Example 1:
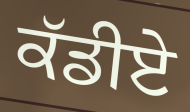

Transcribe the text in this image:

ਕੱਡੀਏ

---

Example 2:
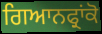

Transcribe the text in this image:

ਗਿਆਨਫ੍ਰਾਂਕੋ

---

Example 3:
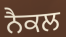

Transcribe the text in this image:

ਨੈਕਲ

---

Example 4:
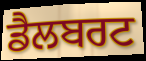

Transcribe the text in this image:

ਡੈਲਬਰਟ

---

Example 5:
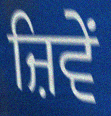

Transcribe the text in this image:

ਜ਼ਿਵੇਂ